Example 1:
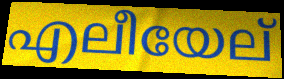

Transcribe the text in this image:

എലീയേല്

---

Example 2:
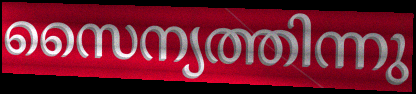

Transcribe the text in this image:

സൈന്യത്തിന്നു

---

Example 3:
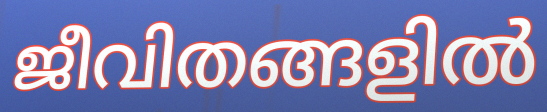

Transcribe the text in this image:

ജീവിതങ്ങളിൽ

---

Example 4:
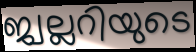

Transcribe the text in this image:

ജ്വല്ലറിയുടെ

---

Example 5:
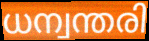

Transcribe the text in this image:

ധന്വന്തരി